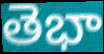
తెభా